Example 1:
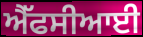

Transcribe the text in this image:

ਐੱਫਸੀਆਈ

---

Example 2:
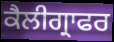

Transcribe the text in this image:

ਕੈਲੀਗ੍ਰਾਫਰ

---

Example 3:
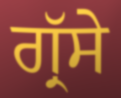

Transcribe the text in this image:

ਗ੍ਰੱਸੇ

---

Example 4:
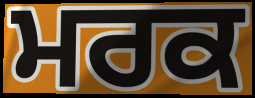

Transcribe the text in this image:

ਮਰਕ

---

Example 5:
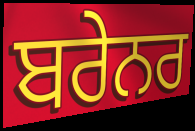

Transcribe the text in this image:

ਬਰੇਨਰ